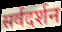
सर्वदर्शन